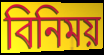
বিনিময়